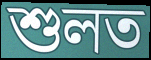
শুলত